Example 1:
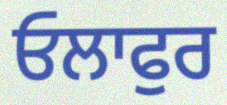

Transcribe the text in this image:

ਓਲਾਫੁਰ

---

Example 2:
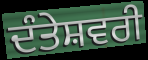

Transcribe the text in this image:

ਦੰਤੇਸ਼ਵਰੀ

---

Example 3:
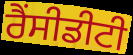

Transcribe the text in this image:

ਰੈਂਸੀਡੀਟੀ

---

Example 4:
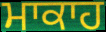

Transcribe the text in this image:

ਮਾਕਾਹ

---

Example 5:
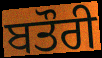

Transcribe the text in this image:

ਬਤੌਰੀ